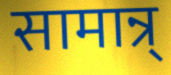
सामान्र्